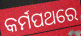
କର୍ମପଥରେ